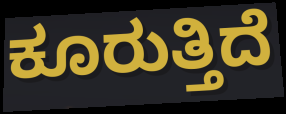
ಕೂರುತ್ತಿದೆ